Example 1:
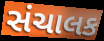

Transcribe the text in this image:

સંચાલક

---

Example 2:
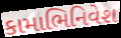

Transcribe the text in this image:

કામાભિનિવેશ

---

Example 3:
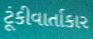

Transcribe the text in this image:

ટૂંકીવાર્તાકાર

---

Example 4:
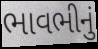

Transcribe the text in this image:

ભાવભીનું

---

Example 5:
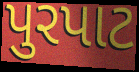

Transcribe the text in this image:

પુરપાટ